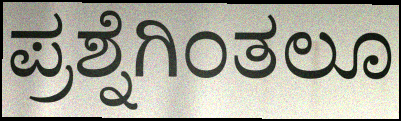
ಪ್ರಶ್ನೆಗಿಂತಲೂ